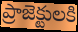
ప్రాజెక్టులకి